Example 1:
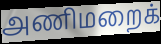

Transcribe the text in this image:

அணிமறைக்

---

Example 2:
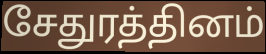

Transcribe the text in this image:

சேதுரத்தினம்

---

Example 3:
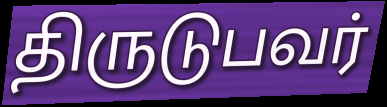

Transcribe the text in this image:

திருடுபவர்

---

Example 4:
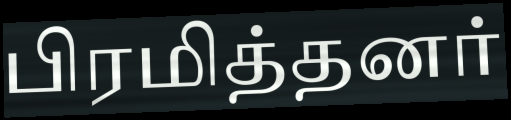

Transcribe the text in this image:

பிரமித்தனர்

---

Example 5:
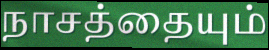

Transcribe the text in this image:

நாசத்தையும்